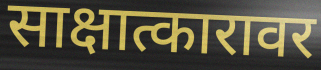
साक्षात्कारावर